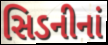
સિડનીનાં